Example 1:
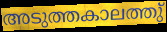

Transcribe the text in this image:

അടുത്തകാലത്തു്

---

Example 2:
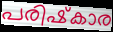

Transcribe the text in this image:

പരിഷ്‌കാര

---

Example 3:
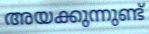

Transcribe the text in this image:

അയക്കുന്നുണ്ട്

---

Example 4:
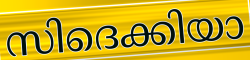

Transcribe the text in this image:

സിദെക്കിയാ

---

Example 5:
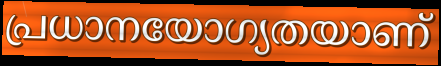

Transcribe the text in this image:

പ്രധാനയോഗ്യതയാണ്